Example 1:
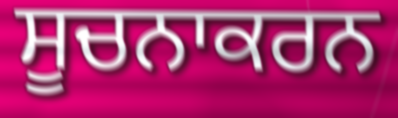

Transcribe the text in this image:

ਸੂਚਨਾਕਰਨ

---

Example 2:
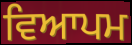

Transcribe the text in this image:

ਵਿਆਪਮ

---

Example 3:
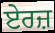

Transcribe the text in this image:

ਏਰਜ਼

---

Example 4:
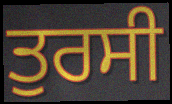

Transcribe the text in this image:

ਤੁਰਸੀ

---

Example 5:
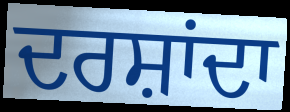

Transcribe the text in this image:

ਦਰਸ਼ਾਂਦਾ